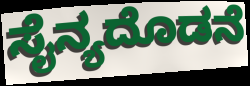
ಸೈನ್ಯದೊಡನೆ